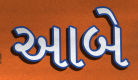
આબે